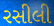
રસીલી